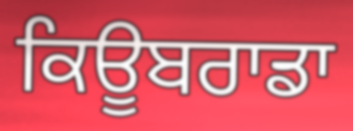
ਕਿਊਬਰਾਡਾ